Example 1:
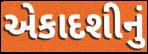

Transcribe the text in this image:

એકાદશીનું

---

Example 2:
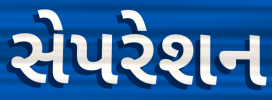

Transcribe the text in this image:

સેપરેશન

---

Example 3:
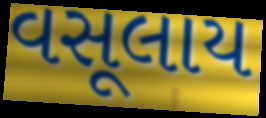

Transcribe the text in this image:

વસૂલાય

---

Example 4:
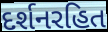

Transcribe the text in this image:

દર્શનરહિત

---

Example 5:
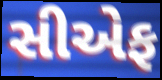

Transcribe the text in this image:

સીએફ